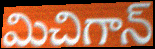
మిచిగాన్